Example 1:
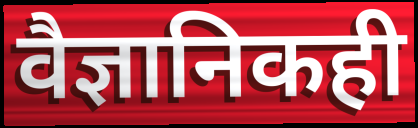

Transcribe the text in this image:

वैज्ञानिकही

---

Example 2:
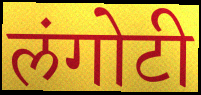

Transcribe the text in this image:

लंगोटी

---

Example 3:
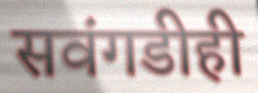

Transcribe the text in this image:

सवंगडीही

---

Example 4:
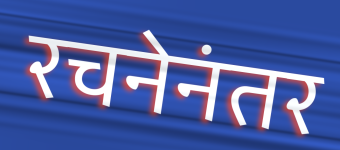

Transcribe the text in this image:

रचनेनंतर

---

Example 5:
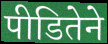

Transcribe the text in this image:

पीडितेने